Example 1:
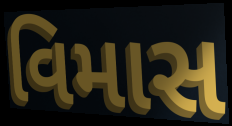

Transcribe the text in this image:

વિમાસ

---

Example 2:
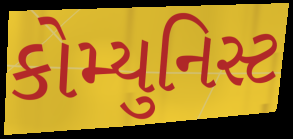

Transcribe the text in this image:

કોમ્યુનિસ્ટ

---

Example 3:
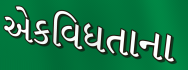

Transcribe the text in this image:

એકવિધતાના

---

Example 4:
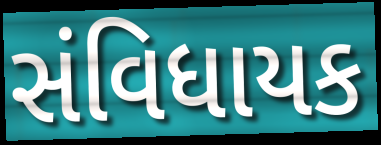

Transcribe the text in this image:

સંવિધાયક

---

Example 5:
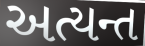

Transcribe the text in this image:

અત્યન્ત